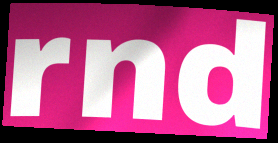
rnd